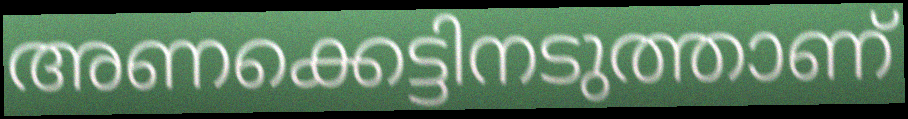
അണക്കെട്ടിനടുത്താണ്